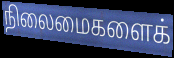
நிலைமைகளைக்